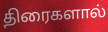
திரைகளால்